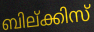
ബില്ക്കിസ്